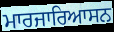
ਮਾਰਜਾਰਿਆਸਨ